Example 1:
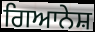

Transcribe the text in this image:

ਗਿਆਨੇਸ਼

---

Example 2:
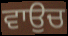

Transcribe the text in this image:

ਵਾਉਚ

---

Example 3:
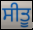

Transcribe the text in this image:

ਸੀਤੂ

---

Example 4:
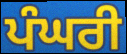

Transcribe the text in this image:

ਪੰਘਰੀ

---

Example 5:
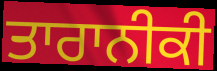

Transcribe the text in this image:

ਤਾਰਾਨੀਕੀ